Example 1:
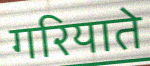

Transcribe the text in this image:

गरियाते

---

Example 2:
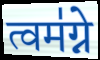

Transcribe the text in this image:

त्वम॑ग्ने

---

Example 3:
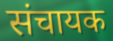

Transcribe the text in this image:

संचायक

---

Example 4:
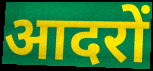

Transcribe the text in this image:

आदरों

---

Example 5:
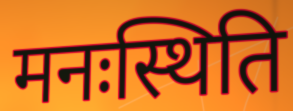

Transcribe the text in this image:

मनःस्थिति